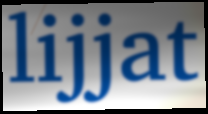
lijjat